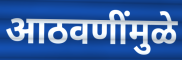
आठवणींमुळे